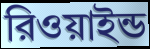
রিওয়াইন্ড